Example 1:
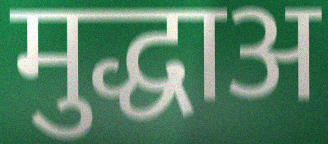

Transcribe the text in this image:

मुद्धाअ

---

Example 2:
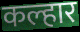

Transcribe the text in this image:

कल्हार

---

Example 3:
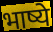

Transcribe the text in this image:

भाष्ये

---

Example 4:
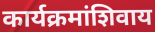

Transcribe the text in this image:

कार्यक्रमांशिवाय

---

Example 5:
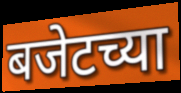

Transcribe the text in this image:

बजेटच्या